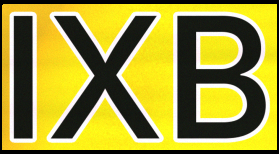
IXB